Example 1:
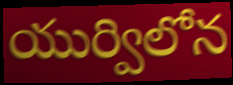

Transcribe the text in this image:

యుర్విలోన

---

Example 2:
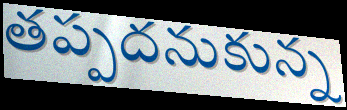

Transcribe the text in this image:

తప్పదనుకున్న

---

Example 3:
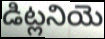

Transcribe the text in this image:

డిట్లనియె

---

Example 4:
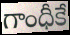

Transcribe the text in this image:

గాంధీకే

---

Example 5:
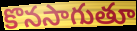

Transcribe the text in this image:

కొనసాగుతూ